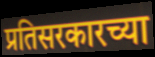
प्रतिसरकारच्या